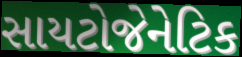
સાયટોજેનેટિક